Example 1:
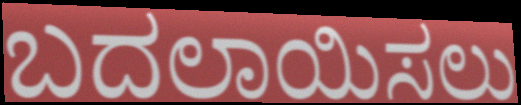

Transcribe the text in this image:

ಬದಲಾಯಿಸಲು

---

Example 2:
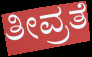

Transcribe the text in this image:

ತೀವ್ರತೆ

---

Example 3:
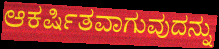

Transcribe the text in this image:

ಆಕರ್ಷಿತವಾಗುವುದನ್ನು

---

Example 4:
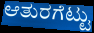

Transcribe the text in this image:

ಆತುರಗೆಟ್ಟು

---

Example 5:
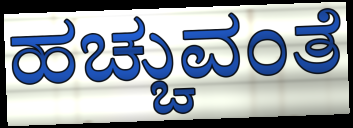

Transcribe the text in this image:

ಹಚ್ಚುವಂತೆ